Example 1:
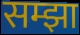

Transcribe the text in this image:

सम्झा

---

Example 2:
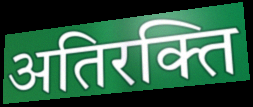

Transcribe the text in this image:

अतिरक्ति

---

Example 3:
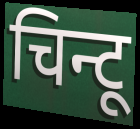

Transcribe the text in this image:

चिन्टू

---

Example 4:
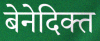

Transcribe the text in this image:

बेनेदिक्त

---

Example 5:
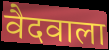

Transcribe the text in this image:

वैदवाला